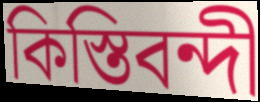
কিস্তিবন্দী